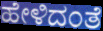
ಹೇಳಿದಂತೆ